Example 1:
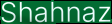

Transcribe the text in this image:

Shahnaz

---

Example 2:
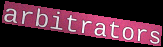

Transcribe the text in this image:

arbitrators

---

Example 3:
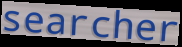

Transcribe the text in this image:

searcher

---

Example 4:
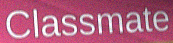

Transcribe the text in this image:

Classmate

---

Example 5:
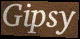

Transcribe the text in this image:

Gipsy